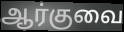
ஆர்குவை